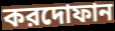
করদোফান